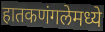
हातकणंगलेमध्ये